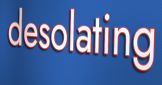
desolating